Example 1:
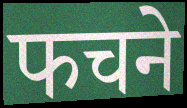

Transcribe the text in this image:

फचने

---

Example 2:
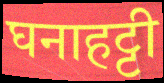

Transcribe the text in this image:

घनाहट्टी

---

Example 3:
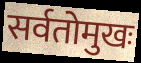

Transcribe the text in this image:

सर्वतोमुखः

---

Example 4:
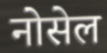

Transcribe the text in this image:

नोसेल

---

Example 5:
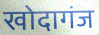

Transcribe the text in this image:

खोदागंज